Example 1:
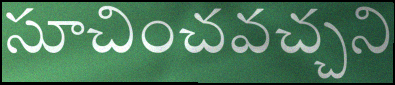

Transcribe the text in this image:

సూచించవచ్చని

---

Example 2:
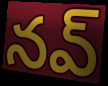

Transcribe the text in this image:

నవ్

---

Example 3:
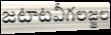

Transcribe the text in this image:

జటాటవీగలజ్జల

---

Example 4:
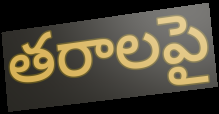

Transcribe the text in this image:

తరాలపై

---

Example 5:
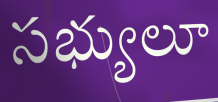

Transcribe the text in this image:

సభ్యులూ